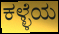
ಕಳ್ಳೆಯ